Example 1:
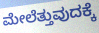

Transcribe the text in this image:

ಮೇಲೆತ್ತುವುದಕ್ಕೆ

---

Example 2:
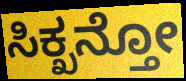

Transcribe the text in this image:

ಸಿಕ್ಖನ್ತೋ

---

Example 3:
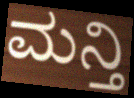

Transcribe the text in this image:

ಮನ್ತಿ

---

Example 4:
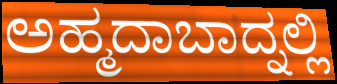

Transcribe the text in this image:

ಅಹ್ಮದಾಬಾದ್ನಲ್ಲಿ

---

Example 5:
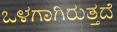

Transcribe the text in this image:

ಒಳಗಾಗಿರುತ್ತದೆ